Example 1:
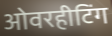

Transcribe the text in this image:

ओवरहीटिंग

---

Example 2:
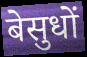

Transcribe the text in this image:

बेसुधों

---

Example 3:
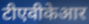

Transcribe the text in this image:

टीएवीकेआर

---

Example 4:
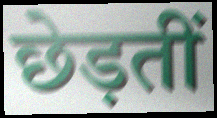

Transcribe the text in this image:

छेड़तीं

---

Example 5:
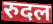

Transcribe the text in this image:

रुदल